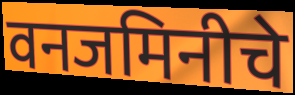
वनजमिनीचे